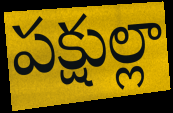
పక్షుల్లా